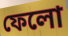
ফেলো